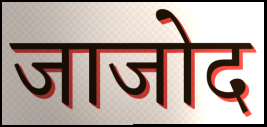
जाजोद